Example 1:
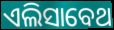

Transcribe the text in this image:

ଏଲିସାବେଥ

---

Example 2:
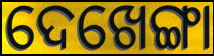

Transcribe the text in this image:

ଦେଖେଙ୍ଗା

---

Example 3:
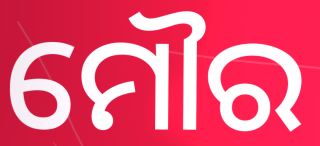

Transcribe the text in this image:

ମୌର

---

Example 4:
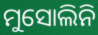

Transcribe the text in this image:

ମୁସୋଲିନି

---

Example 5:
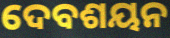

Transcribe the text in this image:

ଦେବଶୟନ